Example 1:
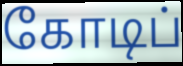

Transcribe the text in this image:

கோடிப்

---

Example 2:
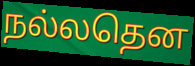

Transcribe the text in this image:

நல்லதென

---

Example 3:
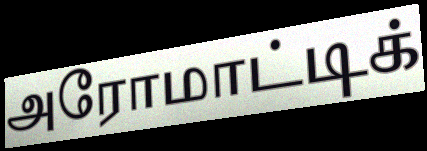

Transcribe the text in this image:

அரோமாட்டிக்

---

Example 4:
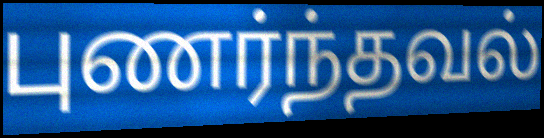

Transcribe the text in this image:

புணர்ந்தவல்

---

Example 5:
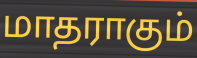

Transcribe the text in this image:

மாதராகும்